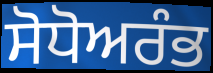
ਸੋਧੋਅਰੰਭ